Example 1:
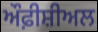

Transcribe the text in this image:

ਔਫ਼ੀਸ਼ੀਅਲ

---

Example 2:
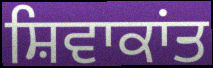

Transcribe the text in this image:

ਸ਼ਿਵਾਕਾਂਤ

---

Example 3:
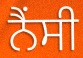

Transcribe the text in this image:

ਨੈਂਸੀ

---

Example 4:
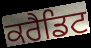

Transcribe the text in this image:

ਕਰੈਡਿਟ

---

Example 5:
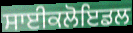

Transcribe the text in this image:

ਸਾਈਕਲੋਇਡਲ